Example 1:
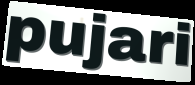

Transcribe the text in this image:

pujari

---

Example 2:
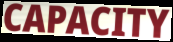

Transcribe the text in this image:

CAPACITY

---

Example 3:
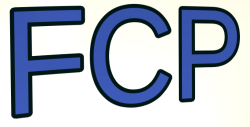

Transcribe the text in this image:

FCP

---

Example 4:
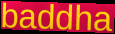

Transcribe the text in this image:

baddha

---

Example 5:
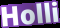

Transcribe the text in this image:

Holli